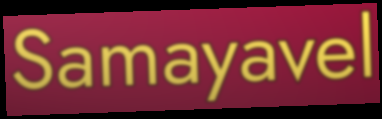
Samayavel